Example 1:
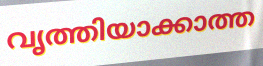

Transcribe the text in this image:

വൃത്തിയാക്കാത്ത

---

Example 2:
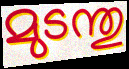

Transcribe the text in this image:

മുടന്തു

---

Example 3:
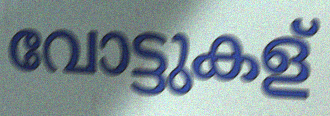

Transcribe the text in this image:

വോട്ടുകള്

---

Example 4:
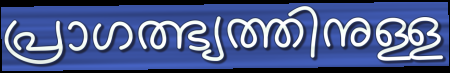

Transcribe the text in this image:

പ്രാഗത്ഭ്യത്തിനുള്ള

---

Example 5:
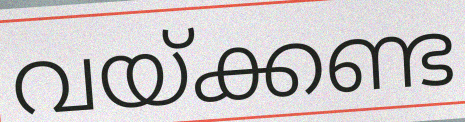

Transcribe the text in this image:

വയ്ക്കണ്ട